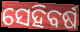
ସେହିବର୍ଷ